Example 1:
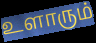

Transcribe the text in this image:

உளாரும்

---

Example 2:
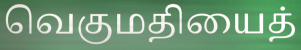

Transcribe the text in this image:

வெகுமதியைத்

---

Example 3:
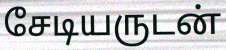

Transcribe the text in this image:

சேடியருடன்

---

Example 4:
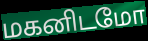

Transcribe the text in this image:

மகனிடமோ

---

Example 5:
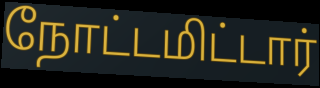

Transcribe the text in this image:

நோட்டமிட்டார்